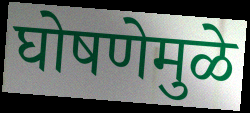
घोषणेमुळे